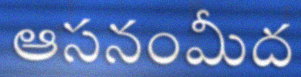
ఆసనంమీద